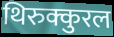
थिरुक्कुरल